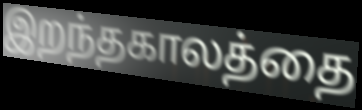
இறந்தகாலத்தை